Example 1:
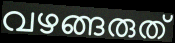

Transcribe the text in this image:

വഴങ്ങരുത്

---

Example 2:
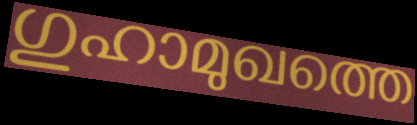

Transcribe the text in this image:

ഗുഹാമുഖത്തെ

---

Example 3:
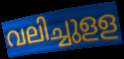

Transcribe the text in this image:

വലിച്ചുളള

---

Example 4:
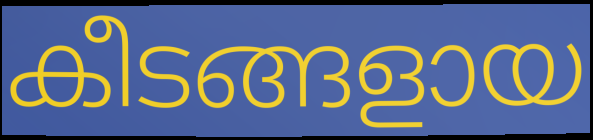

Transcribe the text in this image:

കീടങ്ങളായ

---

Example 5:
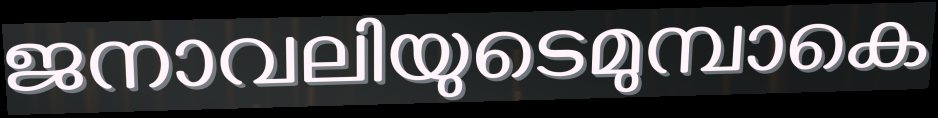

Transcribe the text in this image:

ജനാവലിയുടെമുമ്പാകെ